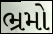
ભ્રમો